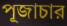
পূজাচার